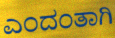
ಎಂದಂತಾಗಿ